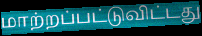
மாற்றப்பட்டுவிட்டது